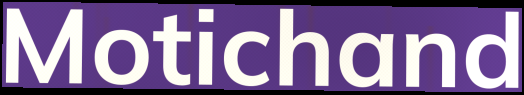
Motichand